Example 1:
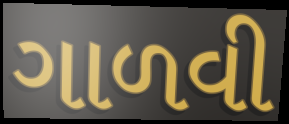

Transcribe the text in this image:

ગાળવી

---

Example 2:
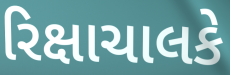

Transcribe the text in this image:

રિક્ષાચાલકે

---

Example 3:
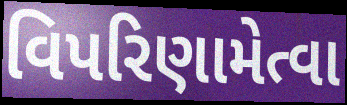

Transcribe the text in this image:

વિપરિણામેત્વા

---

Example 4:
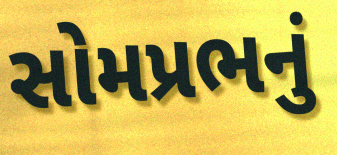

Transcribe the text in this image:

સોમપ્રભનું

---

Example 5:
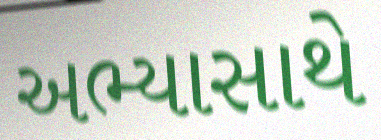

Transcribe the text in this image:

અભ્યાસાથે